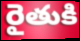
రైతుకి